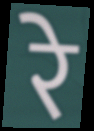
रे